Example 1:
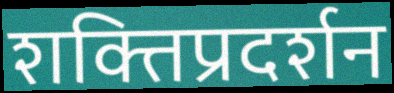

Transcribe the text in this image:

शक्तिप्रदर्शन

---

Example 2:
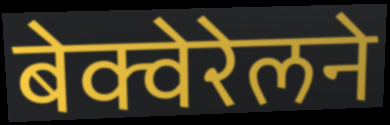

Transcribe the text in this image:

बेक्वेरेलने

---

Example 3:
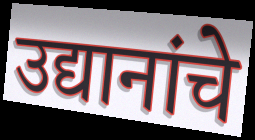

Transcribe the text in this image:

उद्यानांचे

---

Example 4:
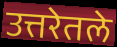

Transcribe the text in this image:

उत्तरेतले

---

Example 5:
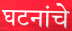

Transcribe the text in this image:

घटनांचे